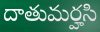
దాతుమర్హసి